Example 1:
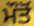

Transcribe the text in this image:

ਮੌਤੋਂ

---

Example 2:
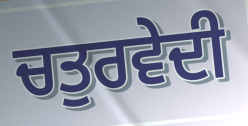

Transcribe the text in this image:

ਚਤੁਰਵੇਦੀ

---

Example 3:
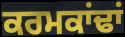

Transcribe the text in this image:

ਕਰਮਕਾਂਢਾਂ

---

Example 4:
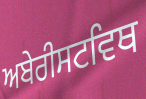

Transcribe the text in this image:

ਅਬੇਰੀਸਟਵਿਥ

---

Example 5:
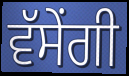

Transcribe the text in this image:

ਵੱਸੇਂਗੀ